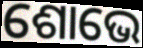
ଶୋଭେ